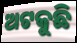
ଅଟକୁଛି